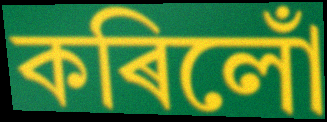
কৰিলোঁ